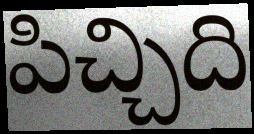
పిచ్చిది